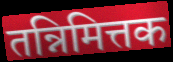
तन्निमित्तक